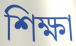
শিক্ষা